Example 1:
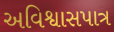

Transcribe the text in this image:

અવિશ્વાસપાત્ર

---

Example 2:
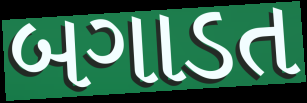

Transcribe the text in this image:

બગાડત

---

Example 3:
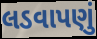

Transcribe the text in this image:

લડવાપણું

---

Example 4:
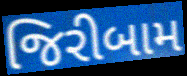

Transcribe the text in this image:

જિરીબામ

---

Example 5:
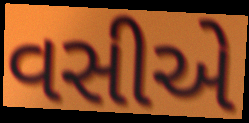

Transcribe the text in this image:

વસીએ